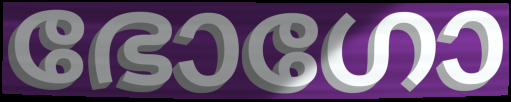
ഭോഗോ